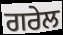
ਗਰੇਲ